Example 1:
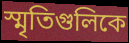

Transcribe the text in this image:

স্মৃতিগুলিকে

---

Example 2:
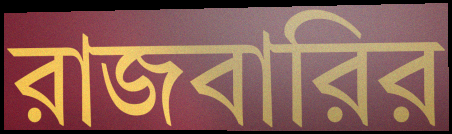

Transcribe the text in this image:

রাজবারির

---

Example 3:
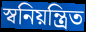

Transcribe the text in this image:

স্বনিয়ন্ত্রিত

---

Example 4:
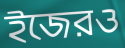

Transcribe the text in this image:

ইজেরও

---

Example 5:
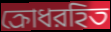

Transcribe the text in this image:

ক্রোধরহিত